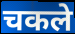
चकले